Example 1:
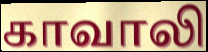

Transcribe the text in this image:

காவாலி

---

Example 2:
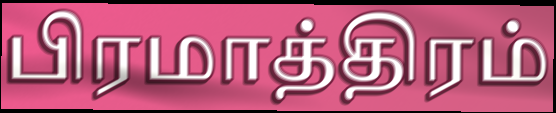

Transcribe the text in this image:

பிரமாத்திரம்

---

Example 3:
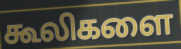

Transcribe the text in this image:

கூலிகளை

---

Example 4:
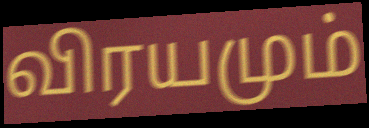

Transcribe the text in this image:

விரயமும்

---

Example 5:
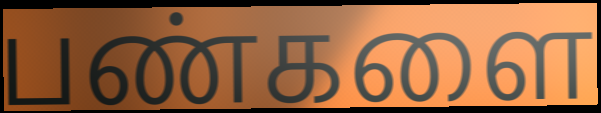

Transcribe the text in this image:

பண்களை